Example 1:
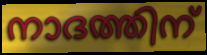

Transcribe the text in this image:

നാദത്തിന്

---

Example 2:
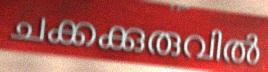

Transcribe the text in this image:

ചക്കക്കുരുവിൽ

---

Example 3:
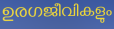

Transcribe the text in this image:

ഉരഗജീവികളും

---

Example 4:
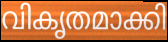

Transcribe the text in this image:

വികൃതമാക്കി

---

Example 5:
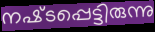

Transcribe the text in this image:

നഷ്‌ടപ്പെട്ടിരുന്നു